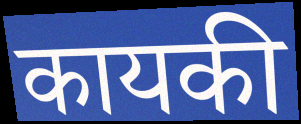
कायकी